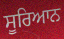
ਸੂਰਿਆਨ